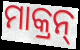
ମାକ୍ରନ୍